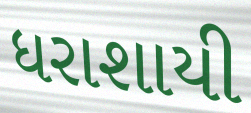
ધરાશાયી